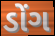
ડોંગ